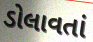
ડોલાવતાં